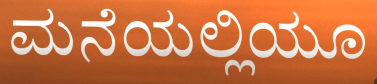
ಮನೆಯಲ್ಲಿಯೂ